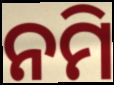
ନମି